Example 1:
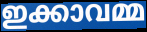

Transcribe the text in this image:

ഇക്കാവമ്മ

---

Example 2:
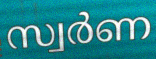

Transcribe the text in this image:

സ്വർണ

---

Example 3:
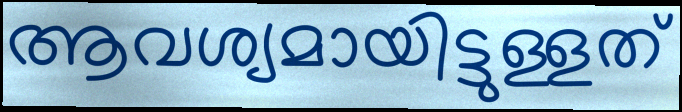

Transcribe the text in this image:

ആവശ്യമായിട്ടുള്ളത്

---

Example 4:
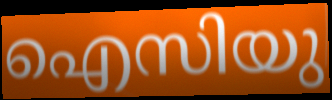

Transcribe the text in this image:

ഐസിയു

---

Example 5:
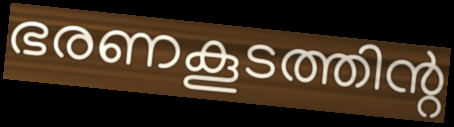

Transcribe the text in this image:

ഭരണകൂടത്തിന്റ